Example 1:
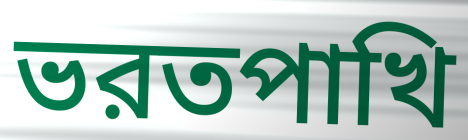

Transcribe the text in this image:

ভরতপাখি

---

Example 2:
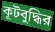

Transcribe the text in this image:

কূটবুদ্ধির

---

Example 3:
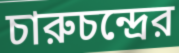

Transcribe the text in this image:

চারুচন্দ্রের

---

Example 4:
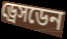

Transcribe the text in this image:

ড্রেসডেন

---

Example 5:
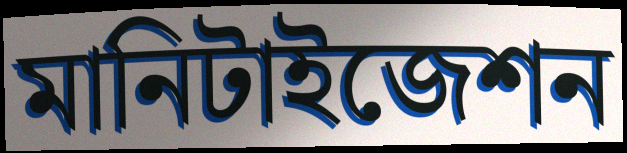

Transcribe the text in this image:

মানিটাইজেশন